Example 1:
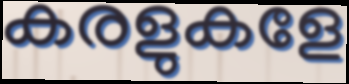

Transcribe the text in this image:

കരളുകളേ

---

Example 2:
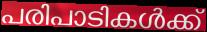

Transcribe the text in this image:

പരിപാടികൾക്ക്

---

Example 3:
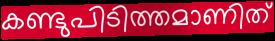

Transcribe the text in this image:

കണ്ടുപിടിത്തമാണിത്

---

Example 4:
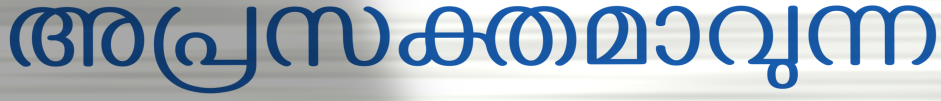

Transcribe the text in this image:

അപ്രസക്തമാവുന്ന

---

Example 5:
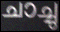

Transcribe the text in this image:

ചാച്ചു